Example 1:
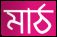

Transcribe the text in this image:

মাঠ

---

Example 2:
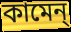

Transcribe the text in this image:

কামেন্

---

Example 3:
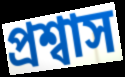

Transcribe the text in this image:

প্রশ্বাস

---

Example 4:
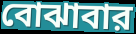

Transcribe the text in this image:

বোঝাবার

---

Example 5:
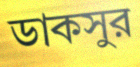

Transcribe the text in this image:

ডাকসুর